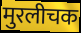
मुरलीचक